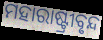
ମହାରାଷ୍ଟ୍ରୀବୃନ୍ଦ